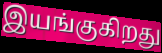
இயங்குகிறது